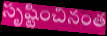
సృష్టించినంత